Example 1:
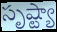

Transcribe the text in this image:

సృష్ట్యా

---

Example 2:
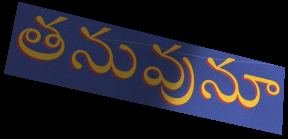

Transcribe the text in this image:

తనువునూ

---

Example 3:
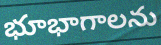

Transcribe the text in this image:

భూభాగాలను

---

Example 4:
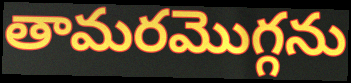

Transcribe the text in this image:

తామరమొగ్గను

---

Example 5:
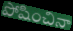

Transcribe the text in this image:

పోషించినా